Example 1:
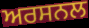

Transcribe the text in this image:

ਅਰਸਨਲ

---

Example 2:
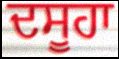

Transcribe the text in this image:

ਦਸੂਹਾ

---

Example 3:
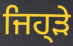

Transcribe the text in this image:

ਜਿਹ੍ੜੇ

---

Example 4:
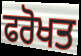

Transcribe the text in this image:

ਫਰੋਖਤ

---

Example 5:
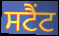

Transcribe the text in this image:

ਸਟੈਂਟ